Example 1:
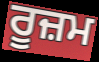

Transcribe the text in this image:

ਰੂਜ਼ਮ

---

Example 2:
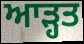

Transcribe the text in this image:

ਆੜ੍ਹਤ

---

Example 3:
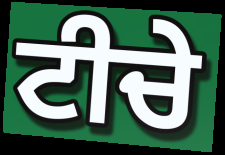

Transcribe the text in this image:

ਟੀਚੇ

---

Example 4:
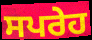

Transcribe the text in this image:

ਸਪਰੇਹ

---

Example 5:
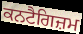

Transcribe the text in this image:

ਕਨਟੈਗਿਜ਼ਮ